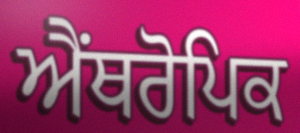
ਐਂਥਰੋਪਿਕ